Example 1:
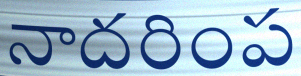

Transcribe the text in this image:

నాదరింప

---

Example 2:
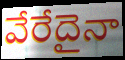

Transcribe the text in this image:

వేరేదైనా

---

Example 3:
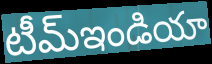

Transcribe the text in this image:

టీమ్ఇండియా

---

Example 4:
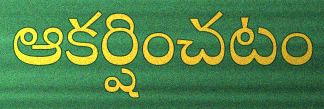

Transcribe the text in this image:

ఆకర్షించటం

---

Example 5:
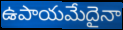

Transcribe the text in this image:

ఉపాయమేదైనా